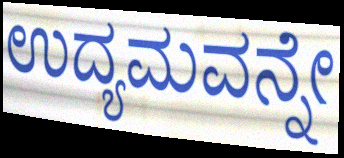
ಉದ್ಯಮವನ್ನೇ